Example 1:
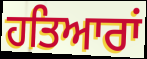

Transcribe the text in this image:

ਹਤਿਆਰਾਂ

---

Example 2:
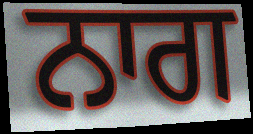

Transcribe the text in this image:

ਨਾਗ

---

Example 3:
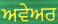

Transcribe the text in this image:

ਅਵੇਅਰ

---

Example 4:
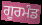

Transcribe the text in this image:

ਗੂਰਮੰਡ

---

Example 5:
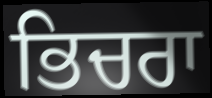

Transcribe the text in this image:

ਭਿਚਰਾ